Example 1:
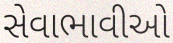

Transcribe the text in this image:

સેવાભાવીઓ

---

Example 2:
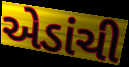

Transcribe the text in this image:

એડાંચી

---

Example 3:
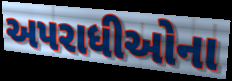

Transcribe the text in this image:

અપરાધીઓના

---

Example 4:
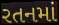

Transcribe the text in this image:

રતનમાં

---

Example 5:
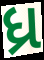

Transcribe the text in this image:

ધ્ર